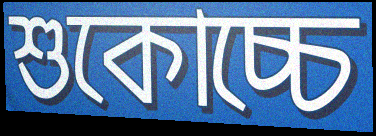
শুকোচ্চে